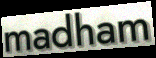
madham